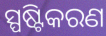
ସ୍ପଷ୍ଟିକରଣ